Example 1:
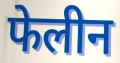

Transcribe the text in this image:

फेलीन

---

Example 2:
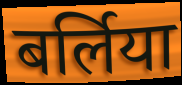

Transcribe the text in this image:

बर्लिया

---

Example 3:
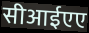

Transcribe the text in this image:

सीआईएए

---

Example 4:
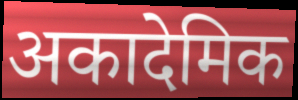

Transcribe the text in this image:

अकादेमिक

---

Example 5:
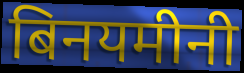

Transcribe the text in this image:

बिनयमीनी